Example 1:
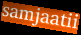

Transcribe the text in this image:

samjaatii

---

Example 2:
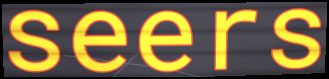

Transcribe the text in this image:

seers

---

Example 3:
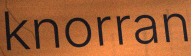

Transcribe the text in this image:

knorran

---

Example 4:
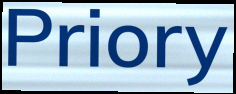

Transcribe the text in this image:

Priory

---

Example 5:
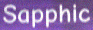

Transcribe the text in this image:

Sapphic